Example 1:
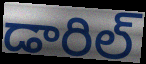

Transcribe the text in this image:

డారిల్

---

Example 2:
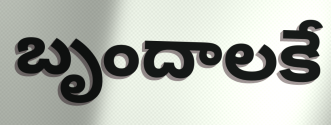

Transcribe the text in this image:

బృందాలకే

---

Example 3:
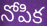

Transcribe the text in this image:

నోపిక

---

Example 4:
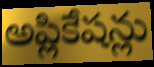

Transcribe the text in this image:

అప్లికేషన్లు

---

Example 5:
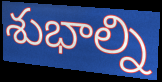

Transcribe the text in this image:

శుభాల్ని